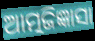
ଆତ୍ମଜିଜ୍ଞାସା